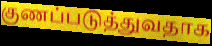
குணப்படுத்துவதாக